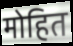
मोहित